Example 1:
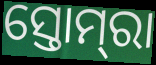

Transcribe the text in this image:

ସ୍ତୋମ୍‌ରା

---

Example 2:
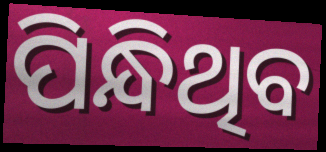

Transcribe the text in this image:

ପିନ୍ଧିଥିବ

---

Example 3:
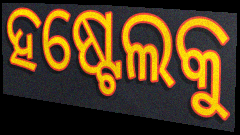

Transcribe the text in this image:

ହଷ୍ଟେଲକୁ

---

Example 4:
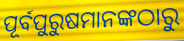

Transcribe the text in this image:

ପୂର୍ବପୁରୁଷମାନଙ୍କଠାରୁ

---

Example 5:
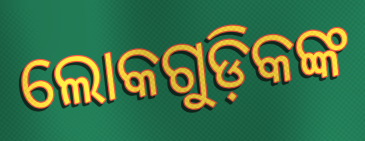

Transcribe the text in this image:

ଲୋକଗୁଡ଼ିକଙ୍କ